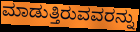
ಮಾಡುತ್ತಿರುವವರನ್ನು